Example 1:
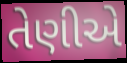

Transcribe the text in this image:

તેણીએ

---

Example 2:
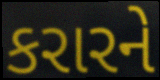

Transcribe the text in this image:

કરારને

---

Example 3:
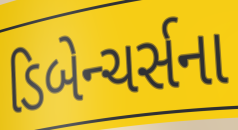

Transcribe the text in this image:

ડિબેન્ચર્સના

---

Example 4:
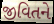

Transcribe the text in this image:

જીવિતને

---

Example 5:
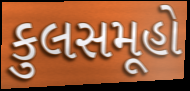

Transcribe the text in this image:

કુલસમૂહો